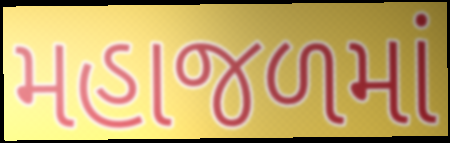
મહાજળમાં